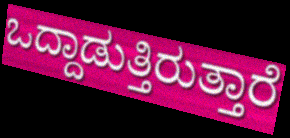
ಒದ್ದಾಡುತ್ತಿರುತ್ತಾರೆ